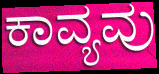
ಕಾವ್ಯವು